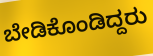
ಬೇಡಿಕೊಂಡಿದ್ದರು